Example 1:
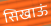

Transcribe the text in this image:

सिखाऊं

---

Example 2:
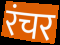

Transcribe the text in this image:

रंचर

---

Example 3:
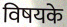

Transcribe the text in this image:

विषयके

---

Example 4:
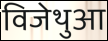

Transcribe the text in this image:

विजेथुआ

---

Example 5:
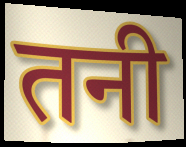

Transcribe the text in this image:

तनी